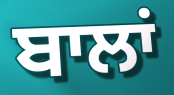
ਬਾਲਾਂ